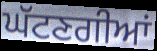
ਘੱਟਣਗੀਆਂ